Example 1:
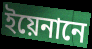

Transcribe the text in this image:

ইয়েনানে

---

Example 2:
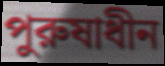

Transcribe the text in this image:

পুরুষাধীন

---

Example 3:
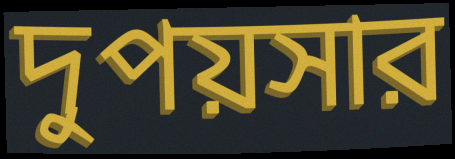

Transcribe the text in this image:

দুপয়সার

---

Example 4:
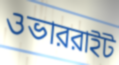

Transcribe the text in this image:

ওভাররাইট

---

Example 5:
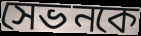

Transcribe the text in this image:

সেভনকে